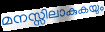
മനസ്സിലാകുകയും